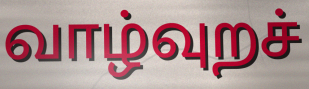
வாழ்வுறச்